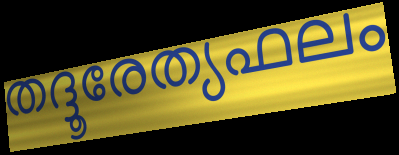
തദ്ദൂരേത്യഫലം